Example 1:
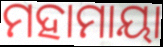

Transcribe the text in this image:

ମହାମାୟା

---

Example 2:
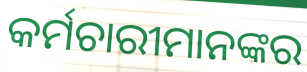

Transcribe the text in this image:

କର୍ମଚାରୀମାନଙ୍କର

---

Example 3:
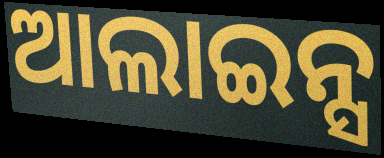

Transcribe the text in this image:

ଆଲାଇନ୍ସ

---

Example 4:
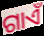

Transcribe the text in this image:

ଗାଏଁ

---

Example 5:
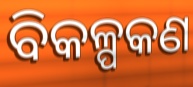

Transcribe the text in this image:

ବିକଳ୍ପକଣ